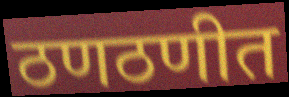
ठणठणीत